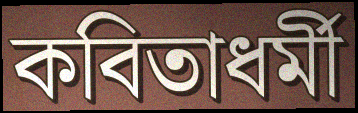
কবিতাধর্মী